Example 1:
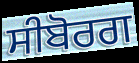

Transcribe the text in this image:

ਸੀਬੋਰਗ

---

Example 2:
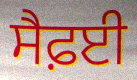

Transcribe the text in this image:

ਸੈਫ਼ਈ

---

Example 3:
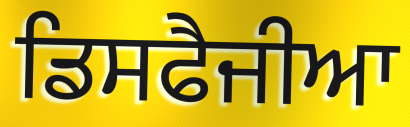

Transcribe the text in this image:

ਡਿਸਫੈਜੀਆ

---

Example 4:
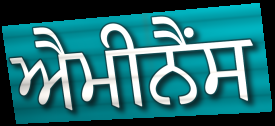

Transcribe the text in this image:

ਐਮੀਨੈਂਸ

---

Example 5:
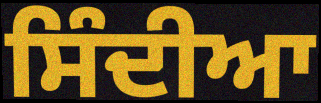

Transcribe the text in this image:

ਸਿੰਦੀਆ